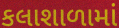
કલાશાળામાં